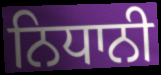
ਨਿਧਾਨੀ